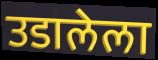
उडालेला